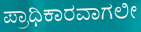
ಪ್ರಾಧಿಕಾರವಾಗಲೀ